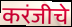
करंजीचे